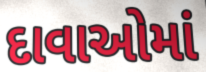
દાવાઓમાં